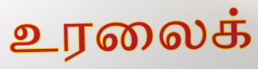
உரலைக்